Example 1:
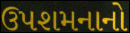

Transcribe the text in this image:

ઉપશમનાનો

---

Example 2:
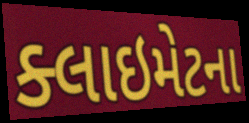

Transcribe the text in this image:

ક્લાઇમેટના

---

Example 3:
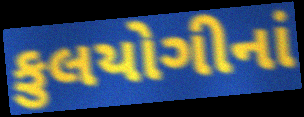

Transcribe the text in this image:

કુલયોગીનાં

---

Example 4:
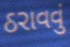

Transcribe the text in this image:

ઠરાવવું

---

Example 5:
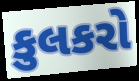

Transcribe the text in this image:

કુલકરો